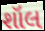
શૉલ